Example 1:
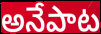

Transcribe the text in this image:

అనేపాట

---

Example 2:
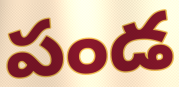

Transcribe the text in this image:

పండ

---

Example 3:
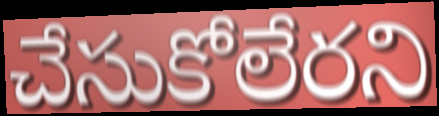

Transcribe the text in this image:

చేసుకోలేరని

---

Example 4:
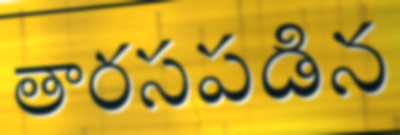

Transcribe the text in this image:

తారసపడిన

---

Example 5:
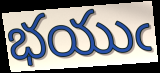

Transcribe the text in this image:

భయుఁ